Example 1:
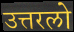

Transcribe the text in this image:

उत्तरलो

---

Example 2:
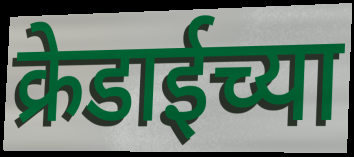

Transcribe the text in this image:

क्रेडाईच्या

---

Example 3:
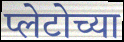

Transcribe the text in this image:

प्लेटोच्या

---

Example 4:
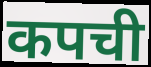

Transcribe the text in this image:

कपची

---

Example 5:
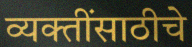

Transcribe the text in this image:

व्यक्तींसाठीचे